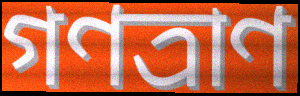
গণত্রাণ